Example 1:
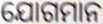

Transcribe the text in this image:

ଯୋଗମାନ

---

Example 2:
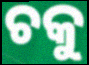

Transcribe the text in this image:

ଚକୁ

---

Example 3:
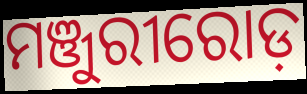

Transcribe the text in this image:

ମଞ୍ଜୁରୀରୋଡ଼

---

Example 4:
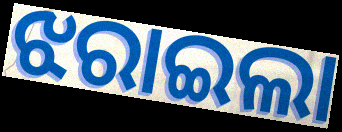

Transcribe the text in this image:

ଝରାଇଲା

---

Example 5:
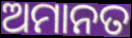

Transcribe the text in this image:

ଅମାନତ